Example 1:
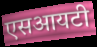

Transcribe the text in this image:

एसआयटी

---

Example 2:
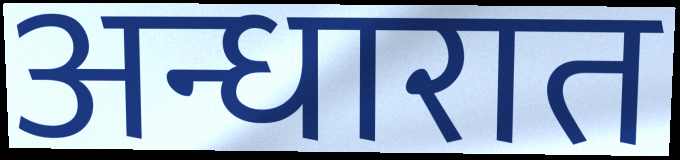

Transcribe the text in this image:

अन्धारात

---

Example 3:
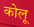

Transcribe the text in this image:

कोलू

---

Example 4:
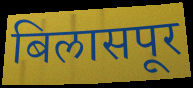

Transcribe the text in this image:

बिलासपूर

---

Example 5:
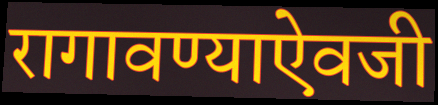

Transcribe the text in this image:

रागावण्याऐवजी